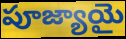
పూజ్యాయై